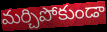
మర్చిపోకుండా